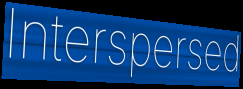
Interspersed